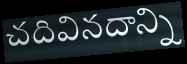
చదివినదాన్ని